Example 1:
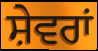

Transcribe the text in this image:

ਸ਼ੇਵਰਾਂ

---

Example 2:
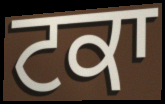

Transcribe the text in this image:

ਟਕਾ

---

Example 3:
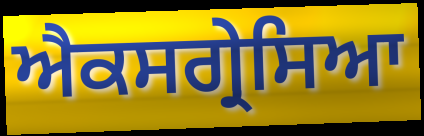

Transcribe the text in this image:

ਐਕਸਗ੍ਰੇਸਿਆ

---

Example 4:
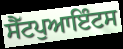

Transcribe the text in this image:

ਸੈੱਟਪੁਆਇੰਟਸ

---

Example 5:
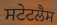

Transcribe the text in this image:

ਸਟੇਟਲੈਸ